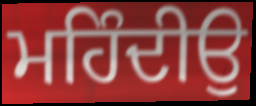
ਮਹਿੰਦੀਉ